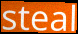
steal